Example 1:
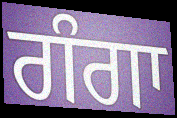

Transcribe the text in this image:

ਗੰਗਾ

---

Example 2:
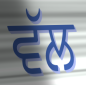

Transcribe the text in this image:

ਵੱਲ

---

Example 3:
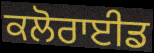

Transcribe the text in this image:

ਕਲੋਰਾਈਡ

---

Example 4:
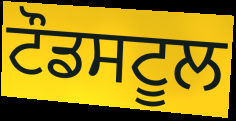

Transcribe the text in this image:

ਟੌਡਸਟੂਲ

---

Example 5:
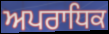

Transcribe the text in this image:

ਅਪਰਾਧਿਕ